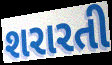
શરારતી